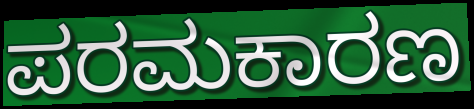
ಪರಮಕಾರಣ